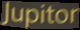
Jupitor